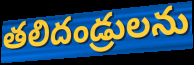
తలిదండ్రులను